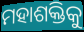
ମହାଶକ୍ତିକୁ